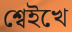
শ্বেইখে